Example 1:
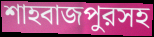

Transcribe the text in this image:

শাহবাজপুরসহ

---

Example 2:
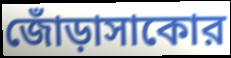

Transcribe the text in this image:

জোঁড়াসাকোর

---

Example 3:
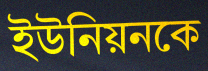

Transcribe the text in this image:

ইউনিয়নকে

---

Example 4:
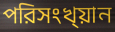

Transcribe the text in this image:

পরিসংখ্য়ান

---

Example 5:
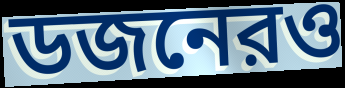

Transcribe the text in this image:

ডজনেরও